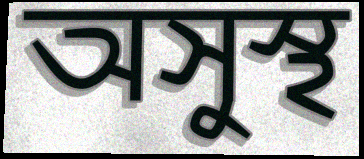
অসুস্থ